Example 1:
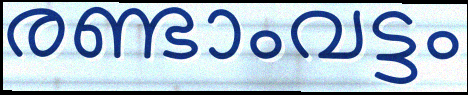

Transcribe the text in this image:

രണ്ടാംവട്ടം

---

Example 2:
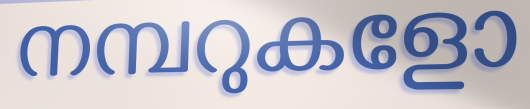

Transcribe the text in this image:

നമ്പറുകളോ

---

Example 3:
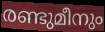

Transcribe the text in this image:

രണ്ടുമീനും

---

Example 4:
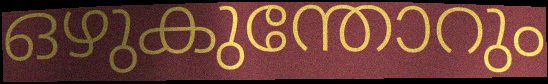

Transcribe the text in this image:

ഒഴുകുന്തോറും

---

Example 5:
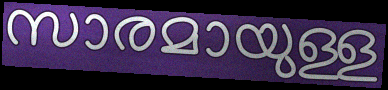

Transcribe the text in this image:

സാരമായുള്ള